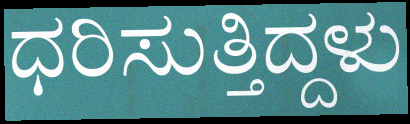
ಧರಿಸುತ್ತಿದ್ದಳು